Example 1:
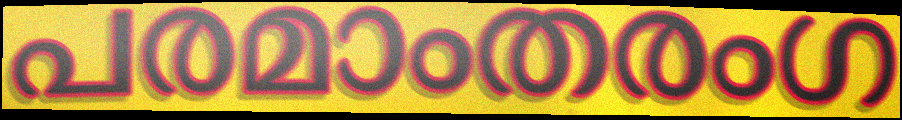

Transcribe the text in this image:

പരമാംതരംഗ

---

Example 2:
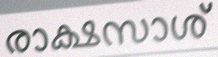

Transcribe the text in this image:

രാക്ഷസാശ്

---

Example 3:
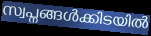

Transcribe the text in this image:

സ്വപ്നങ്ങൾക്കിടയിൽ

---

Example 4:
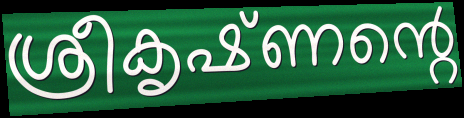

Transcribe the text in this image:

ശ്രീകൃഷ്‌ണന്റെ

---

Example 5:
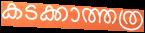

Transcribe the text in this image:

കടക്കാത്തത്ര